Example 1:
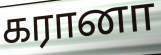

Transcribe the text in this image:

கரானா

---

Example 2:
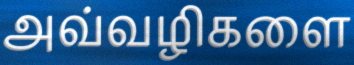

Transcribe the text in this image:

அவ்வழிகளை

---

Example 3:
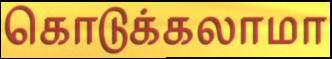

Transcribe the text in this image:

கொடுக்கலாமா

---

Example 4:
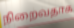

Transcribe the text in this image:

நிறைவதாக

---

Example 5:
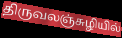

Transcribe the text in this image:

திருவலஞ்சுழியில்